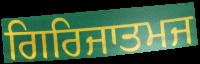
ਗਿਰਿਜਾਤਮਜ